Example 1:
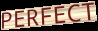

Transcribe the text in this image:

PERFECT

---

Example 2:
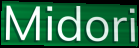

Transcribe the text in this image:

Midori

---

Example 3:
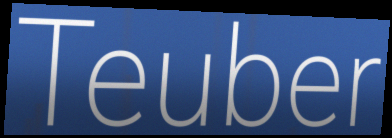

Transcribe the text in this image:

Teuber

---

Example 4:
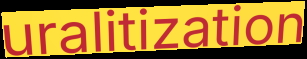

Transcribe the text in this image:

uralitization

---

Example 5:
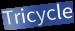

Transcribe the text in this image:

Tricycle